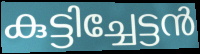
കുട്ടിച്ചേട്ടൻ